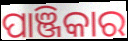
ପାଞ୍ଜିକାର